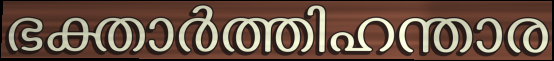
ഭക്താർത്തിഹന്താര